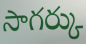
సాగర్కు